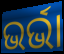
ଭର୍ଭା